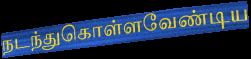
நடந்துகொள்ளவேண்டிய